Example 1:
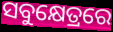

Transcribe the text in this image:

ସବୁକ୍ଷେତ୍ରରେ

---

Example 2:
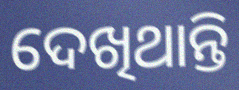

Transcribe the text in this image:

ଦେଖିଥାନ୍ତି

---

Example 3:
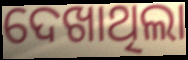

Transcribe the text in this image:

ଦେଖାଥିଲା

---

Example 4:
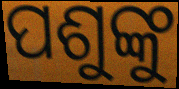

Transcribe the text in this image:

ପଶୁଙ୍କୁ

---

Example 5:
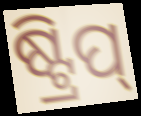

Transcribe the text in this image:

ଷ୍ଟ୍ରିପ୍